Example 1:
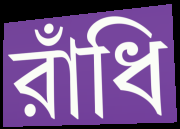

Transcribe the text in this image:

রাঁধি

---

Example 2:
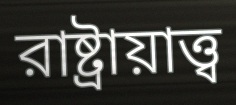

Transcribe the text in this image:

রাষ্ট্রায়াত্ত্ব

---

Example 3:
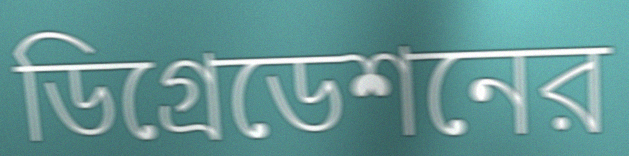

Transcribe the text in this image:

ডিগ্রেডেশনের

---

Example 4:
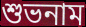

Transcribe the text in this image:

শুভনাম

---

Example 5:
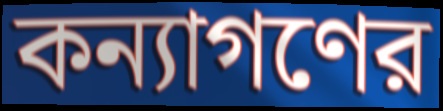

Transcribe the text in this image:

কন্যাগণের